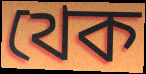
থেক